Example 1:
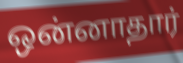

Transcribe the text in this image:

ஒன்னாதார்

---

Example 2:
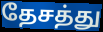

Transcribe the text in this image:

தேசத்து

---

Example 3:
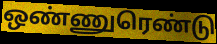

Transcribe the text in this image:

ஒண்ணுரெண்டு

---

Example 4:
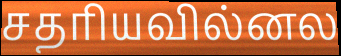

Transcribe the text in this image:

சதரியவில்னல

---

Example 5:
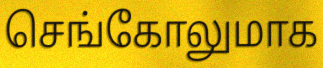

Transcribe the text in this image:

செங்கோலுமாக